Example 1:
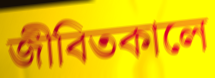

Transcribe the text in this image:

জীবিতকালে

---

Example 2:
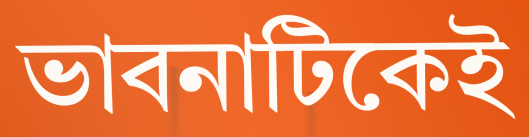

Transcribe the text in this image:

ভাবনাটিকেই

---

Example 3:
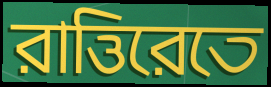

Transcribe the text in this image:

রাত্তিরেতে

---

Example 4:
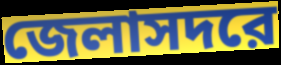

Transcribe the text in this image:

জেলাসদরে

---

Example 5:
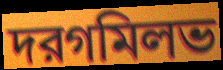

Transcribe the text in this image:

দরগমিলভ